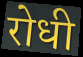
रोधी